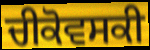
ਚੀਕੋਵਸਕੀ